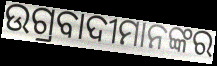
ଉଗ୍ରବାଦୀମାନଙ୍କର